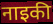
नाइकी